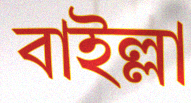
বাইল্লা